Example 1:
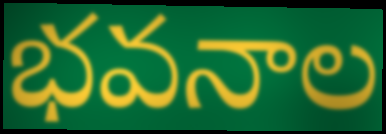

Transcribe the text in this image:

భవనాల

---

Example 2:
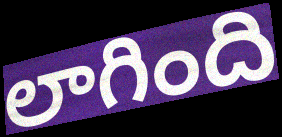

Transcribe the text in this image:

లాగింది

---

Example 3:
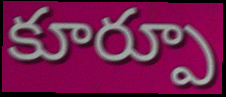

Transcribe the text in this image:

కూర్పూ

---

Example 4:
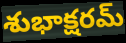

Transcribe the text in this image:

శుభాక్షరమ్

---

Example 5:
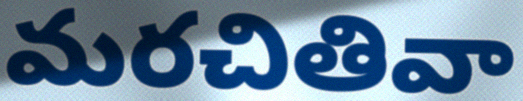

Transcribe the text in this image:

మరచితివా